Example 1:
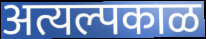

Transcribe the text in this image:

अत्यल्पकाळ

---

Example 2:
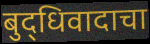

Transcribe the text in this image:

बुद्धिवादाचा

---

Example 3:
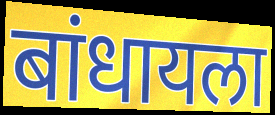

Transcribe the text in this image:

बांधायला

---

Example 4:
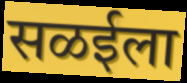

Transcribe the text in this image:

सळईला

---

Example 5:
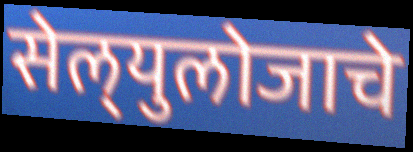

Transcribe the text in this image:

सेल्युलोजाचे